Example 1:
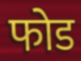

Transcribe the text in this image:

फोड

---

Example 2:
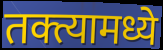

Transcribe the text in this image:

तक्‍त्यामध्ये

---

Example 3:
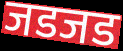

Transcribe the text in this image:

जडजड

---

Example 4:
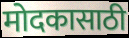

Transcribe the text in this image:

मोदकासाठी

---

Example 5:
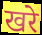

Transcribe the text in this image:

खरे